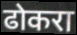
ढोकरा